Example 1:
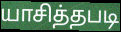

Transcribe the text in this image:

யாசித்தபடி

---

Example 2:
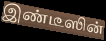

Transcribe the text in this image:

இண்டீஸின்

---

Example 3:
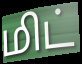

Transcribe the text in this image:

மிட்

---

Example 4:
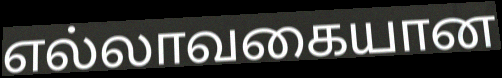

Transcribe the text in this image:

எல்லாவகையான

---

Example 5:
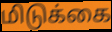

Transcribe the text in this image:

மிடுக்கை